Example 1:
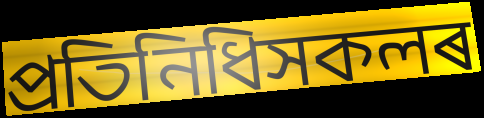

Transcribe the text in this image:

প্ৰতিনিধিসকলৰ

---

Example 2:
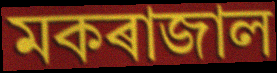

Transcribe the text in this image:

মকৰাজাল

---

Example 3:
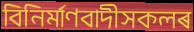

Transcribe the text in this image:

বিনিৰ্মাণবাদীসকলৰ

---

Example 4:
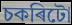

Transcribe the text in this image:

চকৰিটো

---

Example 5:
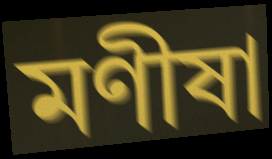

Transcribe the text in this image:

মণীষা